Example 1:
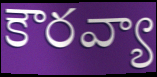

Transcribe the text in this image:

కౌరవ్యా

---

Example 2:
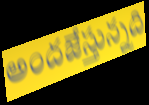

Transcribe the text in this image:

అందజేస్తున్నది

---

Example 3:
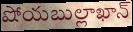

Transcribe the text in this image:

షోయబుల్లాఖాన్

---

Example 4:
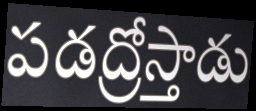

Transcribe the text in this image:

పడద్రోస్తాడు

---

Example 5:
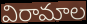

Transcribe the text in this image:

విరామాల